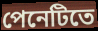
পেনেটিতে